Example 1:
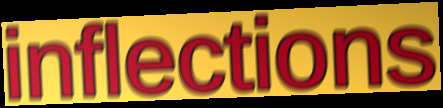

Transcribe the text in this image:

inflections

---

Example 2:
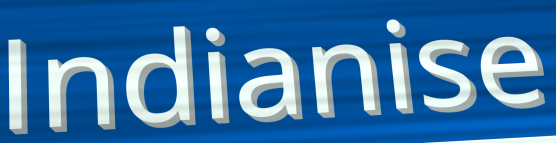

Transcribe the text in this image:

Indianise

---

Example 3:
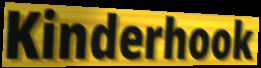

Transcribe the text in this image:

Kinderhook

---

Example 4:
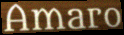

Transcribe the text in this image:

Amaro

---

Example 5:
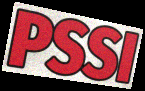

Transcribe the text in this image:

PSSI